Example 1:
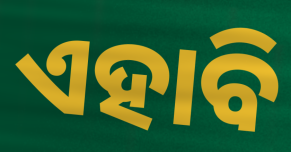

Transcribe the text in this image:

ଏହାବି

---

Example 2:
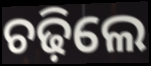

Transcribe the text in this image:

ଚଢ଼ିଲେ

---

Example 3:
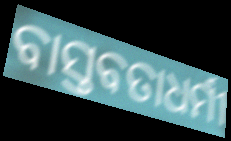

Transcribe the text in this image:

ବାସ୍ତବତାଧର୍ମୀ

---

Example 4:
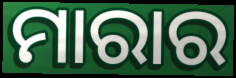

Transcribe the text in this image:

ମାରାର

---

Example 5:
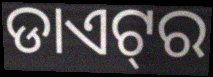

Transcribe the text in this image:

ଡାଏଟ୍‌ର